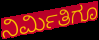
ನಿರ್ಮಿತಿಗೂ